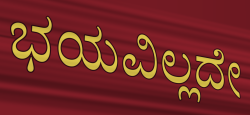
ಭಯವಿಲ್ಲದೇ